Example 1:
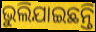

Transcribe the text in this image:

ଭୁଲିଯାଇଛନ୍ତି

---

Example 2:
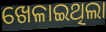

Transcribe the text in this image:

ଖେଳାଇଥିଲା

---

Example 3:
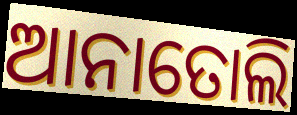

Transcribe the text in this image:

ଆନାତୋଲି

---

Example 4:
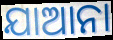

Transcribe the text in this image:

ଯାଆନା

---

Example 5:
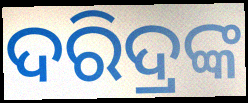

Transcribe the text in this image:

ଦରିଦ୍ରଙ୍କ